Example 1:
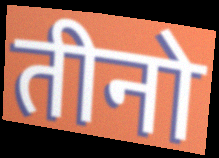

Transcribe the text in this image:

तीनो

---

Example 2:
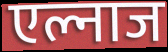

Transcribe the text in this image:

एल्नाज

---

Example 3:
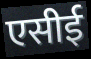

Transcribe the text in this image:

एसीई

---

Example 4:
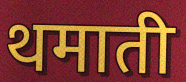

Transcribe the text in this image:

थमाती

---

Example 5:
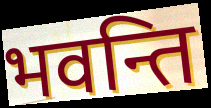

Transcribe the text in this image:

भवन्ति